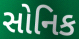
સોનિક